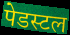
पेडस्टल